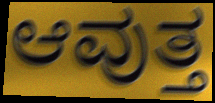
ಆವುತ್ತ